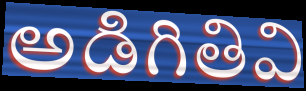
అడిగితివి